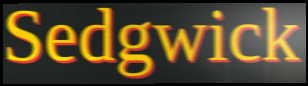
Sedgwick